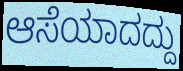
ಆಸೆಯಾದದ್ದು